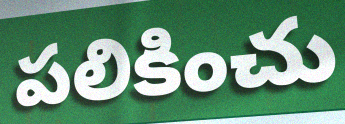
పలికించు